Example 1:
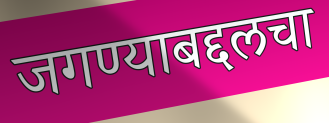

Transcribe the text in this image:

जगण्याबद्दलचा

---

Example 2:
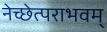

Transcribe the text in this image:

नेच्छेत्पराभवम्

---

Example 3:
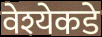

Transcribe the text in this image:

वेश्येकडे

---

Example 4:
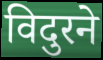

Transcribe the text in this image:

विदुरने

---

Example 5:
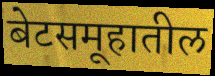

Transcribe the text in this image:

बेटसमूहातील